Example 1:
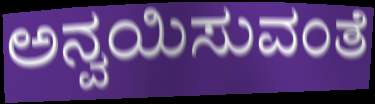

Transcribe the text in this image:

ಅನ್ವಯಿಸುವಂತೆ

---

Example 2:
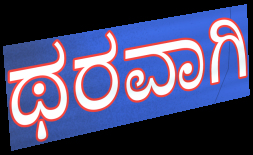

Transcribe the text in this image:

ಥರವಾಗಿ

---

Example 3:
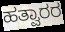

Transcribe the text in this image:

ಹತ್ವಾರರ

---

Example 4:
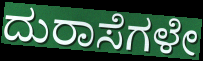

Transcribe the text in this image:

ದುರಾಸೆಗಳೇ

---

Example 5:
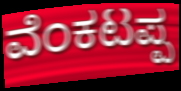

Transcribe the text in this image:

ವೆಂಕಟಪ್ಪ